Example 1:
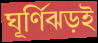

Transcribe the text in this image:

ঘূর্ণিঝড়ই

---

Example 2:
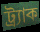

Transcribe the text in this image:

ট্র্যাক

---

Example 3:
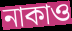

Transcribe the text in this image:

নাকাও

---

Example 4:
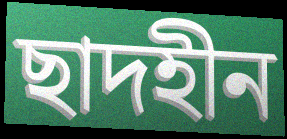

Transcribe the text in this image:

ছাদহীন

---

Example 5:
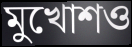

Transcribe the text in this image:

মুখোশও